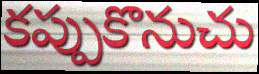
కప్పుకొనుచు